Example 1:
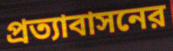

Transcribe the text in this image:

প্রত্যাবাসনের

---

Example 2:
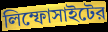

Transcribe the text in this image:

লিম্ফোসাইটের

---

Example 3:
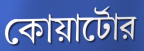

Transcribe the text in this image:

কোয়ার্টোর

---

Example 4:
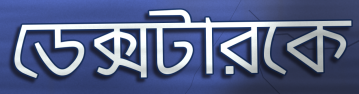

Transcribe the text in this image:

ডেক্সটারকে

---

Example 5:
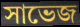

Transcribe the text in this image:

সাভেজ